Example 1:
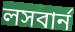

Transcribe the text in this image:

লসবার্ন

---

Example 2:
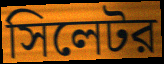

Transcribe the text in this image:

সিলেটর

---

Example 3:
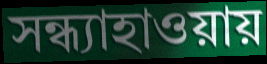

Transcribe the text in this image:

সন্ধ্যাহাওয়ায়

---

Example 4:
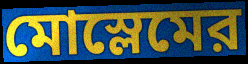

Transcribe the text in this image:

মোস্লেমের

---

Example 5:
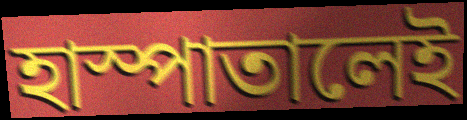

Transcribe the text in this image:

হাস্পাতালেই